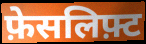
फ़ेसलिफ़्ट